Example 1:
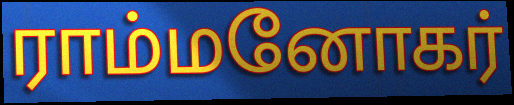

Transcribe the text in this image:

ராம்மனோகர்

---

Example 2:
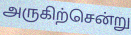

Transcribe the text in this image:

அருகிற்சென்று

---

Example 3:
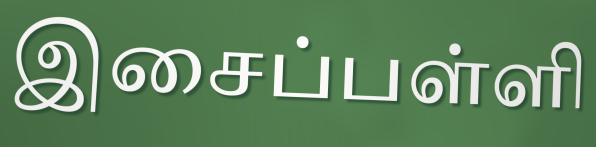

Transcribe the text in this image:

இசைப்பள்ளி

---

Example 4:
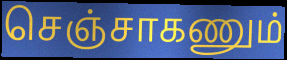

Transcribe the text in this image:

செஞ்சாகணும்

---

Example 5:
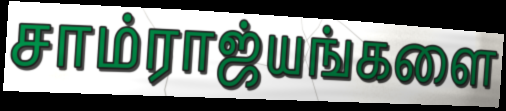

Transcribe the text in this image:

சாம்ராஜ்யங்களை